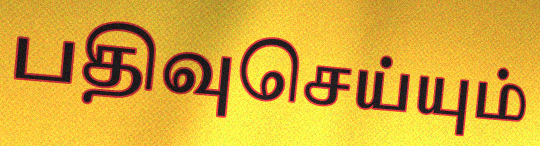
பதிவுசெய்யும்